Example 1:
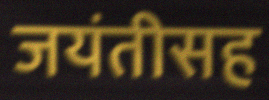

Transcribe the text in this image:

जयंतीसह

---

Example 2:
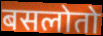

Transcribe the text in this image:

बसलोतो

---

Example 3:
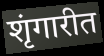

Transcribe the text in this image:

शृंगारीत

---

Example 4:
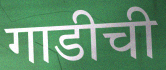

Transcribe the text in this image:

गाडीची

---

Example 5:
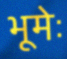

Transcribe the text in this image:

भूमेः